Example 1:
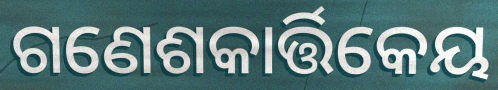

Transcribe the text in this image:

ଗଣେଶକାର୍ତ୍ତିକେୟ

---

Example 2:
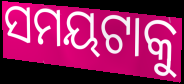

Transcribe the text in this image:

ସମୟଟାକୁ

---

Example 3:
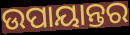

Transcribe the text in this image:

ଉପାୟାନ୍ତର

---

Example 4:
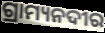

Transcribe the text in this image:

ଗ୍ରାମ୍ୟନଦୀର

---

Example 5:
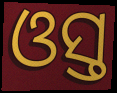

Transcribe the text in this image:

ଓସ୍ତ